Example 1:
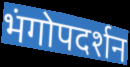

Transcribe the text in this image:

भंगोपदर्शन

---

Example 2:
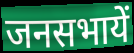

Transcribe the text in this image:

जनसभायें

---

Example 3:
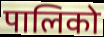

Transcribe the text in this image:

पालिको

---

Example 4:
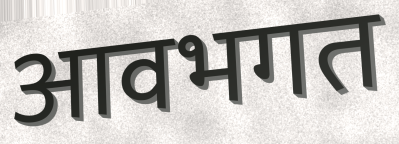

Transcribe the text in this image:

आवभगत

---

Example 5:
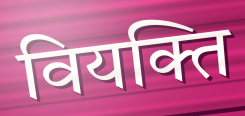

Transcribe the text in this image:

वियक्ति